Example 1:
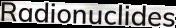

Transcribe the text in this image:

Radionuclides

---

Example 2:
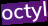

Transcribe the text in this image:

octyl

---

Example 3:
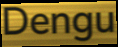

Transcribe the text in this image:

Dengu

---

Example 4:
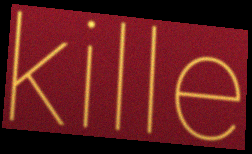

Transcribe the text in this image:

kille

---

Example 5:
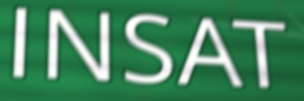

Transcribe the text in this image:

INSAT